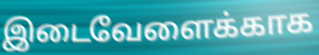
இடைவேளைக்காக